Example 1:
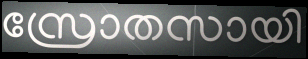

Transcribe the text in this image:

സ്രോതസായി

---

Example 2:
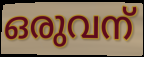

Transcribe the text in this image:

ഒരുവന്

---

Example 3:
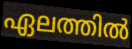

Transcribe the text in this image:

ഏലത്തിൽ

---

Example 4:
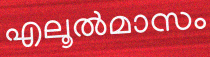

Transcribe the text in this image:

എലൂൽമാസം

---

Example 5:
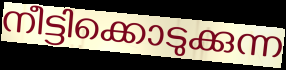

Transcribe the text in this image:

നീട്ടിക്കൊടുക്കുന്ന